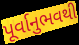
પૂર્વાનુભવથી